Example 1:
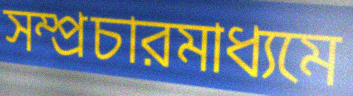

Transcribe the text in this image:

সম্প্রচারমাধ্যমে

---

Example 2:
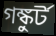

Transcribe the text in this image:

গঙ্কুর্ট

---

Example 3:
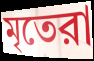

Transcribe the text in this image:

মৃতেরা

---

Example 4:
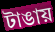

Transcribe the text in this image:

টাঙায়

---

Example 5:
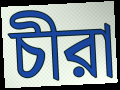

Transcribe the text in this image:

চীরা